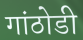
गांठोडी